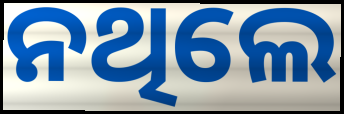
ନଥିଲେ